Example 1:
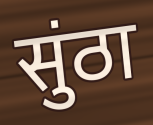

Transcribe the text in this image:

सुंठा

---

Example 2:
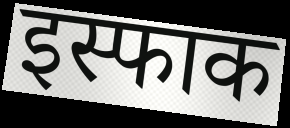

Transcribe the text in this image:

इस्फाक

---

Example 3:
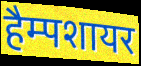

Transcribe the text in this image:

हैम्पशायर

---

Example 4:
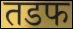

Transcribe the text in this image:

तडफ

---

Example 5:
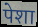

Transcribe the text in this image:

पेशा